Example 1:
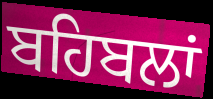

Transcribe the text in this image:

ਬਹਿਬਲਾਂ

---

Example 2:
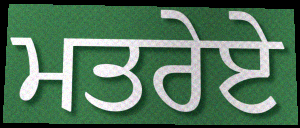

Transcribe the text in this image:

ਮਤਰੇਏ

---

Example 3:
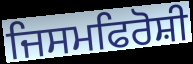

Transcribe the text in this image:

ਜਿਸਮਫਿਰੋਸ਼ੀ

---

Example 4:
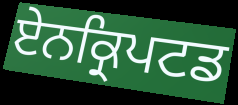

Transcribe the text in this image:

ਏਨਕ੍ਰਿਪਟਡ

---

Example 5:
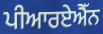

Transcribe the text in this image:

ਪੀਆਰਏਐੱਨ